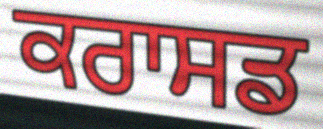
ਕਰਾਸਡ